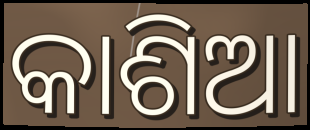
କାଶିଆ